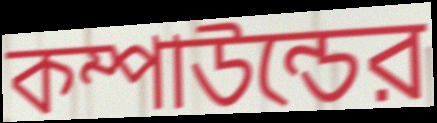
কম্পাউন্ডের